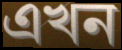
এখন